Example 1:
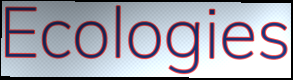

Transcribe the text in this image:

Ecologies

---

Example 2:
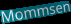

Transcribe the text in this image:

Mommsen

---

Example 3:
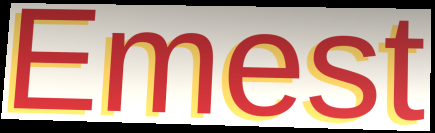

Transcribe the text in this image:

Emest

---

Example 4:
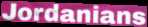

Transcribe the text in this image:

Jordanians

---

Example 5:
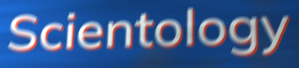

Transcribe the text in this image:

Scientology